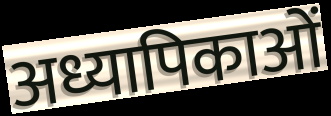
अध्यापिकाओं